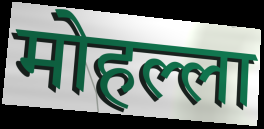
मोहल्‍ला